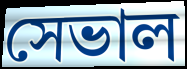
সেভাল